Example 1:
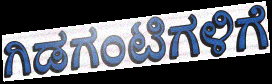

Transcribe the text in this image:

ಗಿಡಗಂಟಿಗಳಿಗೆ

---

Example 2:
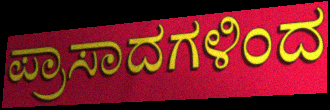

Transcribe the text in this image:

ಪ್ರಾಸಾದಗಳಿಂದ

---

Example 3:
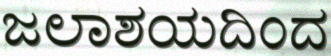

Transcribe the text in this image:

ಜಲಾಶಯದಿಂದ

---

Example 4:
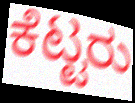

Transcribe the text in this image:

ಕೆಟ್ಟರು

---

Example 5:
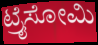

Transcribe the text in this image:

ಟ್ರೈಸೋಮಿ